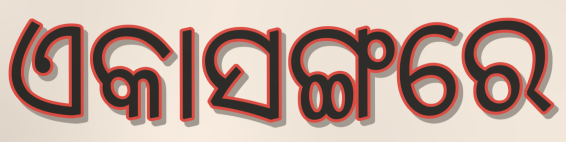
ଏକାସଙ୍ଗରେ